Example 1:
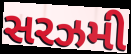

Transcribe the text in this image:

સરઝમી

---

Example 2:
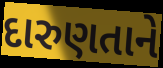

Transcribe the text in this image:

દારુણતાને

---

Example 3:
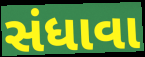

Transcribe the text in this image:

સંધાવા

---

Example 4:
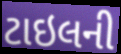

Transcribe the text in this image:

ટાઇલની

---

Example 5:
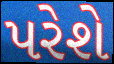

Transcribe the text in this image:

પરેશે